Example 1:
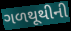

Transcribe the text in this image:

ગળથૂથીની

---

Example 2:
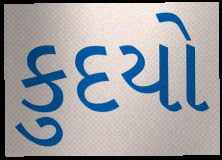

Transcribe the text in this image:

કુદયો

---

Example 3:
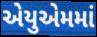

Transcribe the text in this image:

એયુએમમાં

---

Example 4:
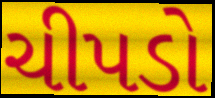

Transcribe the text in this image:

ચીપડો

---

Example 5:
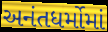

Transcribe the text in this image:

અનંતધર્મોમાં